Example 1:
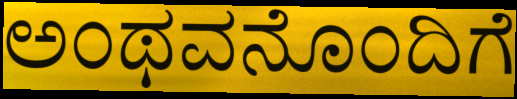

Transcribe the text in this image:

ಅಂಥವನೊಂದಿಗೆ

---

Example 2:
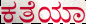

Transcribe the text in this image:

ಕತೆಯಾ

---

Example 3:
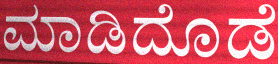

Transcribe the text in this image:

ಮಾಡಿದೊಡೆ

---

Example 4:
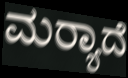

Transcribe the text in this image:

ಮರ‍್ಯಾದೆ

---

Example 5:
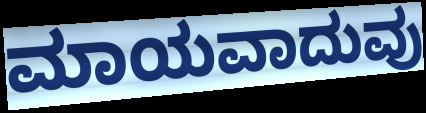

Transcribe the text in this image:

ಮಾಯವಾದುವು